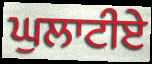
ਘੁਲਾਟੀਏ